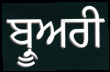
ਬ੍ਰੂਅਰੀ